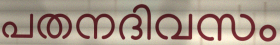
പതനദിവസം